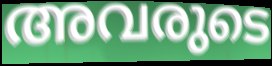
അവരുടെ